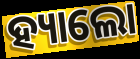
ହ୍ୟାଲୋ